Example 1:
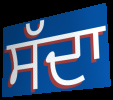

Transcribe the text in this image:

ਸੱਦਾ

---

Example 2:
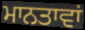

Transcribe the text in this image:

ਮਾਨਤਾਵਾਂ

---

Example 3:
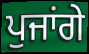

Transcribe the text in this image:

ਪੁਜਾਂਗੇ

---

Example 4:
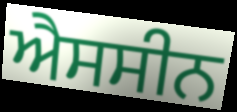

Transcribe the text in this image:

ਐਸਸੀਨ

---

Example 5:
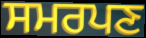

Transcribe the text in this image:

ਸਮਰਪਣ